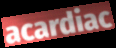
acardiac